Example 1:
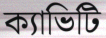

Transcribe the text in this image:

ক্যাভিটি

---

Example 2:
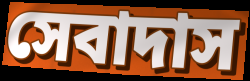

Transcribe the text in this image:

সেবাদাস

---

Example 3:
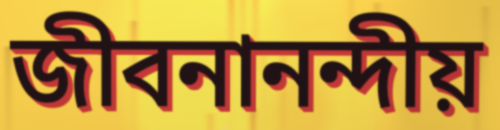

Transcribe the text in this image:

জীবনানন্দীয়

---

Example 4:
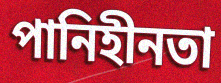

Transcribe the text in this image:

পানিহীনতা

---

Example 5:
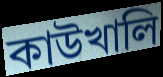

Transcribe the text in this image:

কাউখালি